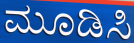
ಮೂಡಿಸಿ